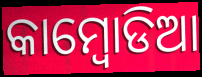
କାମ୍ବୋଡିଆ